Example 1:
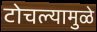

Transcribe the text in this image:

टोचल्यामुळे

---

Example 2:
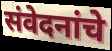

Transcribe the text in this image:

संवेदनांचे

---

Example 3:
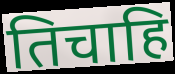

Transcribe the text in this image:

तिचाहि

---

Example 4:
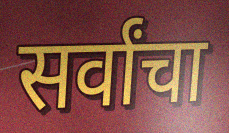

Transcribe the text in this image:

सर्वांचा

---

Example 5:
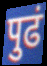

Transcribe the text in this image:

पुढं